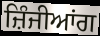
ਜ਼ਿੰਜੀਆਂਗ